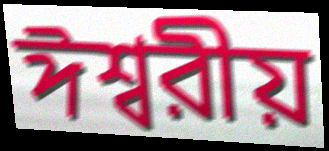
ঈশ্বরীয়